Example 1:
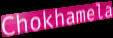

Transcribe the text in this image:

Chokhamela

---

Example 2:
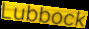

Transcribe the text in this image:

Lubbock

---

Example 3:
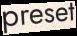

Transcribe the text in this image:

preset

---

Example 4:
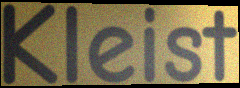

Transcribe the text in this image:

Kleist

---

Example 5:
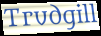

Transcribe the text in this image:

Trudgill